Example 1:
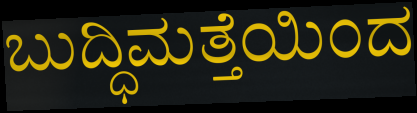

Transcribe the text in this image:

ಬುದ್ಧಿಮತ್ತೆಯಿಂದ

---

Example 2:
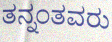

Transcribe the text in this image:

ತನ್ನಂತವರು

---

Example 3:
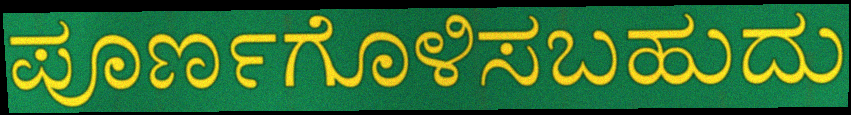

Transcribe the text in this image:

ಪೂರ್ಣಗೊಳಿಸಬಹುದು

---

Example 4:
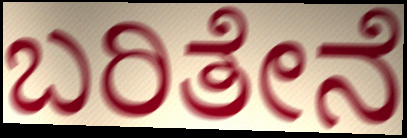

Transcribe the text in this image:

ಬರಿತೇನೆ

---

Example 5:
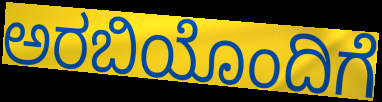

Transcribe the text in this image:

ಅರಬಿಯೊಂದಿಗೆ